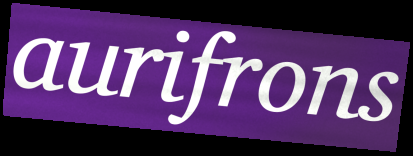
aurifrons